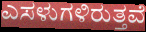
ಎಸಳುಗಳಿರುತ್ತವೆ